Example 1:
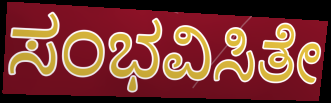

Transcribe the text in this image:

ಸಂಭವಿಸಿತೇ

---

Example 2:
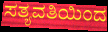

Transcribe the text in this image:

ಸತ್ಯವತಿಯಿಂದ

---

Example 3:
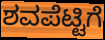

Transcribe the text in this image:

ಶವಪೆಟ್ಟಿಗೆ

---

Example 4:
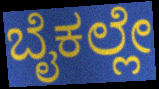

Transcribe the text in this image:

ಬೈಕಲ್ಲೇ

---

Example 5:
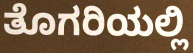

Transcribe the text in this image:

ತೊಗರಿಯಲ್ಲಿ